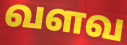
வளவ